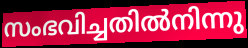
സംഭവിച്ചതിൽനിന്നു